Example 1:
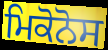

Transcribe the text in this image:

ਮਿਕੋਨੋਸ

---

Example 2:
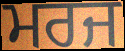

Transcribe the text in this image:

ਮਰਜ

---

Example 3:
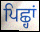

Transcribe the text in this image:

ਪਿਛ੍ਹਾਂ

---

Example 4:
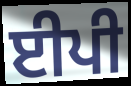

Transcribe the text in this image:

ਈਪੀ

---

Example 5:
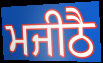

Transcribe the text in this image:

ਮਜੀਠੈ